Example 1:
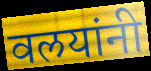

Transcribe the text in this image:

वलयांनी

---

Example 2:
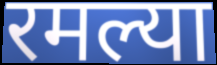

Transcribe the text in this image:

रमल्या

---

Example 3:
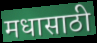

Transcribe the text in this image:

मधासाठी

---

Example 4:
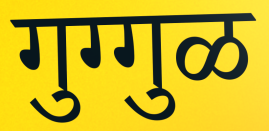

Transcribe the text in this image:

गुग्गुळ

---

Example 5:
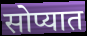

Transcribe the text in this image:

सोप्यात